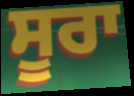
ਸੂਰਾ